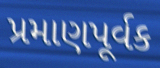
પ્રમાણપૂર્વક